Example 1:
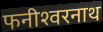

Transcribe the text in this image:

फनीश्वरनाथ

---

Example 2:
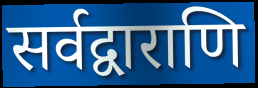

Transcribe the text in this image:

सर्वद्वाराणि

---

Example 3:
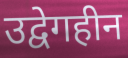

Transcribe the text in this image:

उद्वेगहीन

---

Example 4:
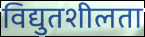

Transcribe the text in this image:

विद्युतशीलता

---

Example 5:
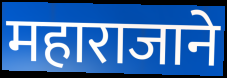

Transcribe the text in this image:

महाराजाने